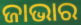
ଜାଭାର